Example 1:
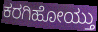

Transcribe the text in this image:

ಕರಗಿಹೋಯ್ತು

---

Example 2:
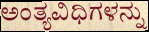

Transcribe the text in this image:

ಅಂತ್ಯವಿಧಿಗಳನ್ನು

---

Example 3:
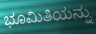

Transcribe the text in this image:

ಭೂಮಿತಿಯನ್ನು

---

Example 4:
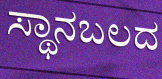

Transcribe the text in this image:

ಸ್ಥಾನಬಲದ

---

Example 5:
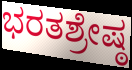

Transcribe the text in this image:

ಭರತಶ್ರೇಷ್ಠ